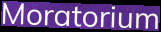
Moratorium